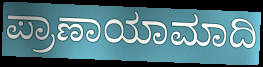
ಪ್ರಾಣಾಯಾಮಾದಿ